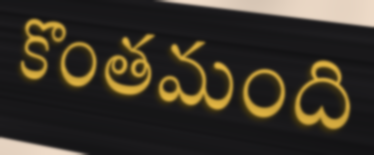
కొంతమంది